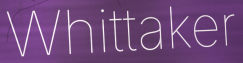
Whittaker